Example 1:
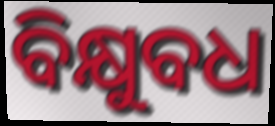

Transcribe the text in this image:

ବିକ୍ଷୁବଧ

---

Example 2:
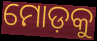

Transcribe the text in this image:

ମୋଡ଼କୁ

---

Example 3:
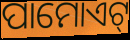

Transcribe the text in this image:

ପାମୋଏଟ୍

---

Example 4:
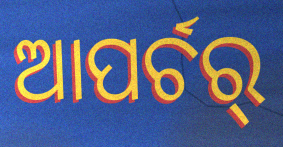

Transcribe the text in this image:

ଆପର୍ଚର୍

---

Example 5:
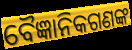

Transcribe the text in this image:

ବୈଜ୍ଞାନିକଗଣଙ୍କ